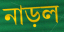
নাড়ল